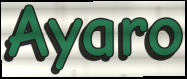
Ayaro